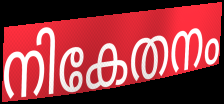
നികേതനം